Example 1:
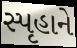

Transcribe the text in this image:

સ્પૃહાને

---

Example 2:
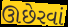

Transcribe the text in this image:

ઊછેરવાં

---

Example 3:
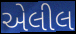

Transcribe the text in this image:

એલીલ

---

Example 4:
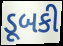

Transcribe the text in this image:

ડૂબકી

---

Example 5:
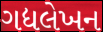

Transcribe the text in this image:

ગદ્યલેખન